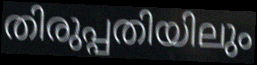
തിരുപ്പതിയിലും